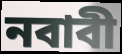
নবাবী